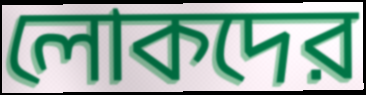
লোকদের